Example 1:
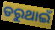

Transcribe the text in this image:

ଡରୁଥାଇଁ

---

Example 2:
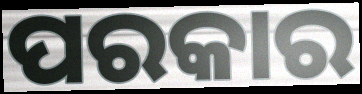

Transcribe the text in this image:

ପରକାର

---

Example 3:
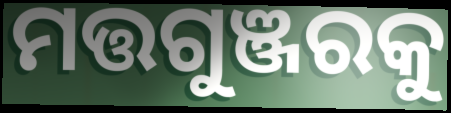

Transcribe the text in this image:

ମତ୍ତଗୁଞ୍ଜରକୁ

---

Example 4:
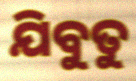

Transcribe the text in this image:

ଯିବୁତୁ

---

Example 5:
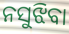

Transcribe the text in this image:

ନସୁଝିବା